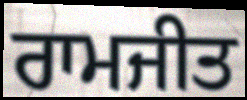
ਰਾਮਜੀਤ